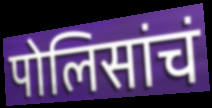
पोलिसांचं